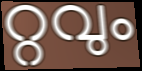
റ്റവും